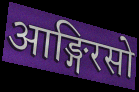
आङ्गिरसो